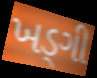
ખડ્ગી